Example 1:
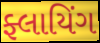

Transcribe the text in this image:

ફ્લાયિંગ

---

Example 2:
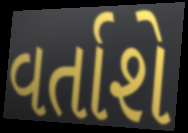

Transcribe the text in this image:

વર્તાશે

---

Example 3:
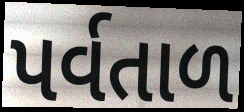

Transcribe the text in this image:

પર્વતાળ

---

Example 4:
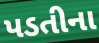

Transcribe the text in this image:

પડતીના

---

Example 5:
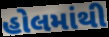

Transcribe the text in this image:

હોલમાંથી